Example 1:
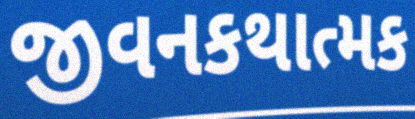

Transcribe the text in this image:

જીવનકથાત્મક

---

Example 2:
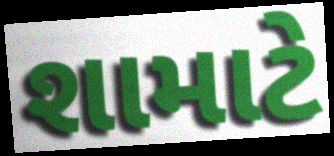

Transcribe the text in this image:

શામાટે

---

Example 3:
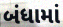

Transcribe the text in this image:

બંધામાં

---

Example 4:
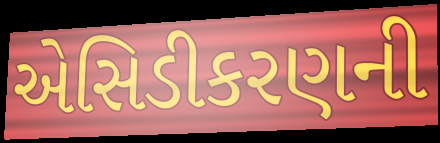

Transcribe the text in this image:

એસિડીકરણની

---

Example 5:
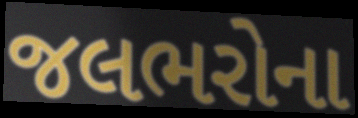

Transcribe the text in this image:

જલભરોના